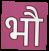
भौ